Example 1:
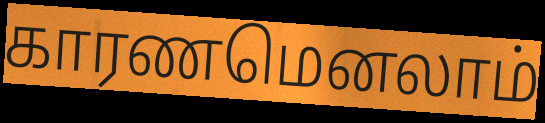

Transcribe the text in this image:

காரணமெனலாம்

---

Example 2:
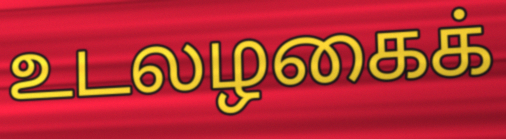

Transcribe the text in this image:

உடலழகைக்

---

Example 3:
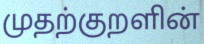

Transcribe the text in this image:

முதற்குறளின்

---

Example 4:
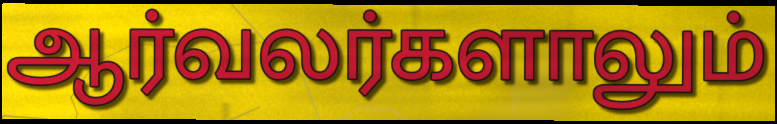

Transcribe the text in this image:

ஆர்வலர்களாலும்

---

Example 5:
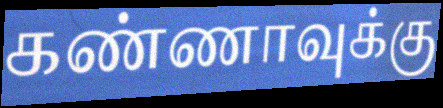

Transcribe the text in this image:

கண்ணாவுக்கு